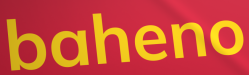
baheno